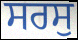
ਸਰਸੁ